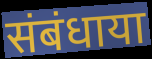
संबंधाया